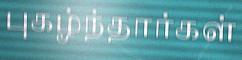
புகழ்ந்தார்கள்